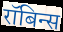
रॉबिन्स